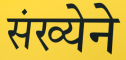
संख्येने